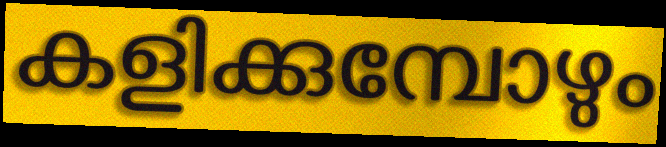
കളിക്കുമ്പോഴും